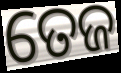
ତେଜ